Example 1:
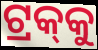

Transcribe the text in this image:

ଟ୍ରକ୍‍କୁ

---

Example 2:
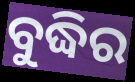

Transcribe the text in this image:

ବୁଦ୍ଧିର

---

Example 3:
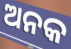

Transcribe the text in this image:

ଅନକ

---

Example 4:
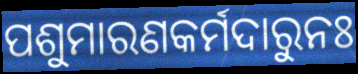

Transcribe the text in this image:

ପଶୁମାରଣକର୍ମଦାରୁନଃ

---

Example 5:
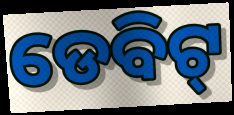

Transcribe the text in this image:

ଡେବିଟ୍